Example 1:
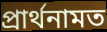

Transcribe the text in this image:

প্রার্থনামত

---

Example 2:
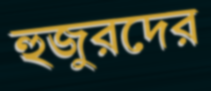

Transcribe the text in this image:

হুজুরদের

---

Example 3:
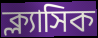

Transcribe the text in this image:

ক্ল্যাসিক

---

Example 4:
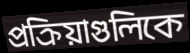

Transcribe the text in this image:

প্রক্রিয়াগুলিকে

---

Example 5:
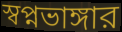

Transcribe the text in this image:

স্বপ্নভাঙ্গার